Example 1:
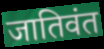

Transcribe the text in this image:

जातिवंत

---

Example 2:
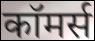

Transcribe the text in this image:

कॉमर्स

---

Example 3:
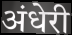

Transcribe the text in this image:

अंधेरी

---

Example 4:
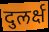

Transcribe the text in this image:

दुलर्क्ष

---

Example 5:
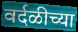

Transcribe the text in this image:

वर्दळीच्या